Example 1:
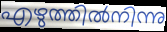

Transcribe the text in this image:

എഴുത്തിൽനിന്നു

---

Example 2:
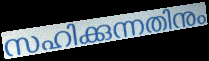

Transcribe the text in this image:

സഹിക്കുന്നതിനും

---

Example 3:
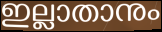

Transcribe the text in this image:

ഇല്ലാതാനും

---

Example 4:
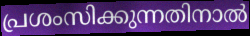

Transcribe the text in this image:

പ്രശംസിക്കുന്നതിനാൽ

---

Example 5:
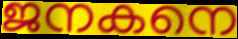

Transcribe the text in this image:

ജനകനെ